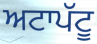
ਅਟਾਪੱਟੂ